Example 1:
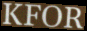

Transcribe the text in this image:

KFOR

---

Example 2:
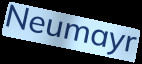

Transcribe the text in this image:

Neumayr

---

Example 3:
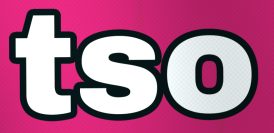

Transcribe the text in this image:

tso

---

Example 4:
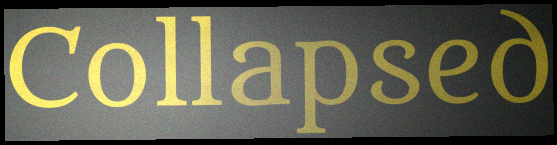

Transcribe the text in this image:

Collapsed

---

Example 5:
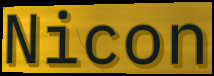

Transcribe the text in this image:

Nicon